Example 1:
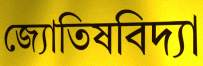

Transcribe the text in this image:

জ্যোতিষবিদ্যা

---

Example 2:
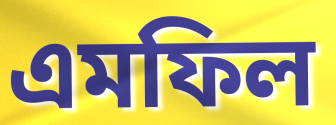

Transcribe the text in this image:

এমফিল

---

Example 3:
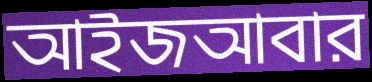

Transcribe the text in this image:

আইজআবার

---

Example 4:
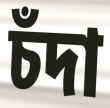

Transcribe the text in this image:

চঁদা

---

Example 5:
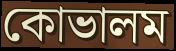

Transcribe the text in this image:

কোভালম